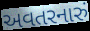
અવતરનારું